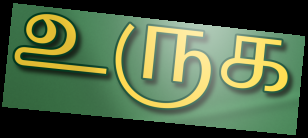
உருக